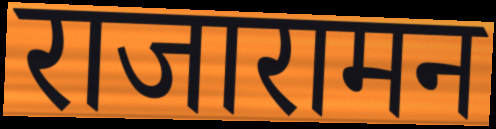
राजारामन